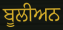
ਬੂਲੀਅਨ